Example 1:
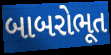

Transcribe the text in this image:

બાબરોભૂત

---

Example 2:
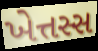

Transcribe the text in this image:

ખેત્તસ્સ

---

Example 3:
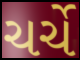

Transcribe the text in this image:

ચર્ચે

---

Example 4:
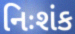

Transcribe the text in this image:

નિઃશંક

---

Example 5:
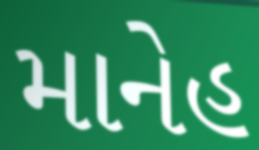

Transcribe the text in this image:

માનેહ